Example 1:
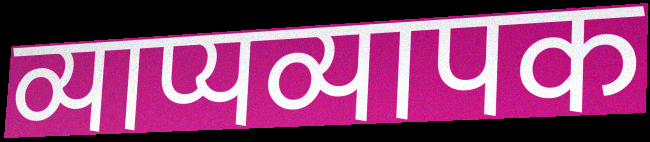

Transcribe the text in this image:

व्याप्यव्यापक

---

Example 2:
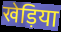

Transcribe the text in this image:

खेड़िया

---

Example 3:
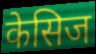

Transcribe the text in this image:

केसिज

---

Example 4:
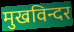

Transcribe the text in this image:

मुखविन्दर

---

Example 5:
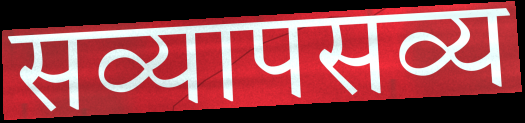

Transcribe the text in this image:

सव्यापसव्य